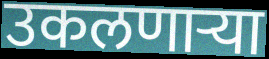
उकलणाऱ्या